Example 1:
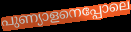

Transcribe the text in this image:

പുണ്യാളനെപ്പോലെ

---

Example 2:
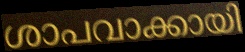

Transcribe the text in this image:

ശാപവാക്കായി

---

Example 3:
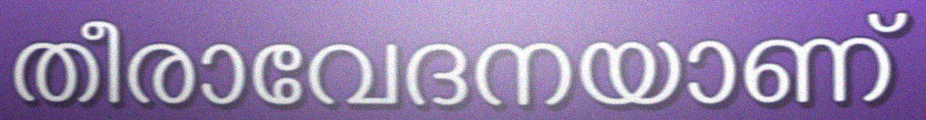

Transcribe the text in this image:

തീരാവേദനയാണ്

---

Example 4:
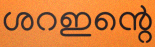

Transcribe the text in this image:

ശറഇന്റെ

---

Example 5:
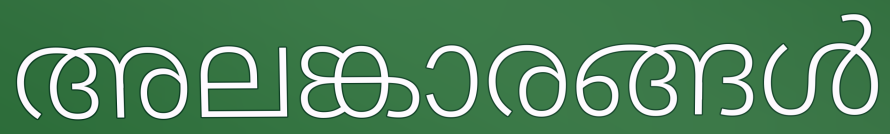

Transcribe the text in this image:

അലങ്കാരങ്ങൾ